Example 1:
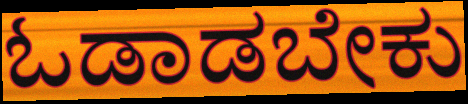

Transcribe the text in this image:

ಓಡಾಡಬೇಕು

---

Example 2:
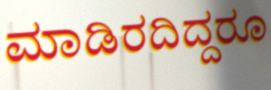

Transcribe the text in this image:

ಮಾಡಿರದಿದ್ದರೂ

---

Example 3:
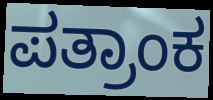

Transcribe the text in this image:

ಪತ್ರಾಂಕ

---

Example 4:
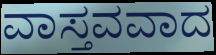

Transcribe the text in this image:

ವಾಸ್ತವವಾದ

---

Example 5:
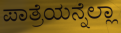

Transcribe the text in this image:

ಪಾತ್ರೆಯನ್ನೆಲ್ಲಾ